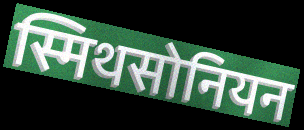
स्मिथसोनियन